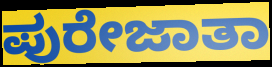
ಪುರೇಜಾತಾ